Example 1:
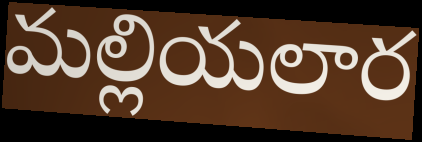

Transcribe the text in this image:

మల్లియలార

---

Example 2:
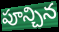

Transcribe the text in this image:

పూన్చిన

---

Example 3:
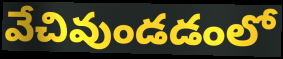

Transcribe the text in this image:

వేచివుండడంలో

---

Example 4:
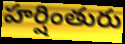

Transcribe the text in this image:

హర్షింతురు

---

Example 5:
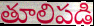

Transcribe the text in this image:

తూలిపడి